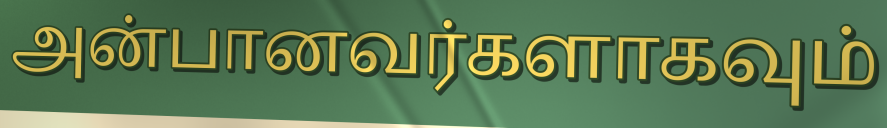
அன்பானவர்களாகவும்